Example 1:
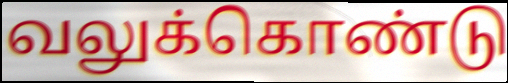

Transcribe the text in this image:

வலுக்கொண்டு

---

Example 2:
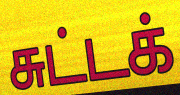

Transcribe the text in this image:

சுட்டக்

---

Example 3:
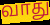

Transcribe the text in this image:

வாது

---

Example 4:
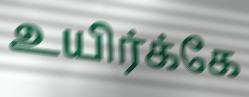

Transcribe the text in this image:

உயிர்க்கே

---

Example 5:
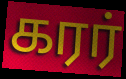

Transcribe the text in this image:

கரர்